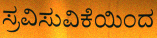
ಸ್ರವಿಸುವಿಕೆಯಿಂದ